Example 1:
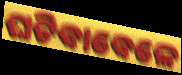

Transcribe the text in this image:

ଘଟିବାବେଳେ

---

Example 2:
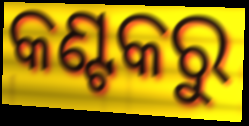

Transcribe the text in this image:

କଣ୍ଟକରୁ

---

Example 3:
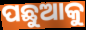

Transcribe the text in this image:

ପଛୁଆକୁ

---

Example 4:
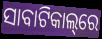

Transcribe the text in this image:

ସାବାଟିକାଲ୍‌ରେ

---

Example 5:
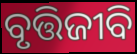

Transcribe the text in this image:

ବୃତ୍ତିଜୀବି